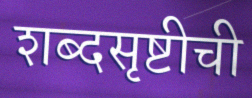
शब्दसृष्टीची